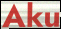
Aku